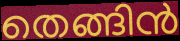
തെങ്ങിൻ